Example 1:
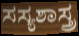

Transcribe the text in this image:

ಸಸ್ಯಶಾಸ್ತ್ರ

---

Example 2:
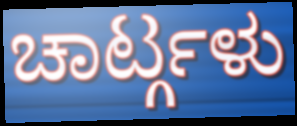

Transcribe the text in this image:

ಚಾರ್ಟ್ಗಳು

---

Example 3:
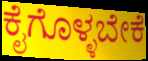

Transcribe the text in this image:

ಕೈಗೊಳ್ಳಬೇಕೆ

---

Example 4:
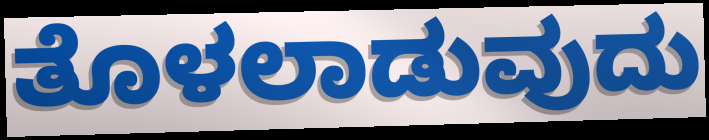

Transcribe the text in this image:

ತೊಳಲಾಡುವುದು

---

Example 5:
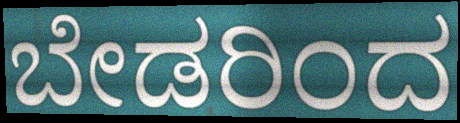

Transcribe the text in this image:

ಬೇಡರಿಂದ